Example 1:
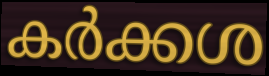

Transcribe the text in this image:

കർക്കശ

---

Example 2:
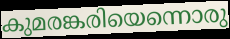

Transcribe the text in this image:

കുമരങ്കരിയെന്നൊരു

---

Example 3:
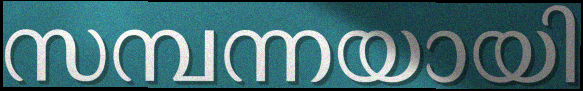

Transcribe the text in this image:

സമ്പന്നയായി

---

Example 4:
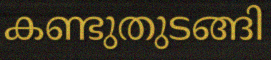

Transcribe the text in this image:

കണ്ടുതുടങ്ങി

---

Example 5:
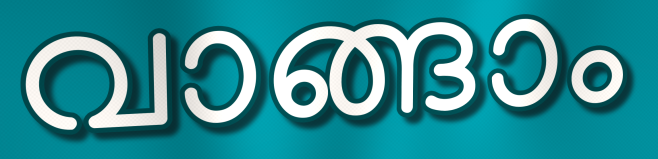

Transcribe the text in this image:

വാങ്ങാം